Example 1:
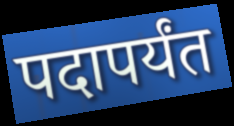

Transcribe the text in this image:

पदापर्यंत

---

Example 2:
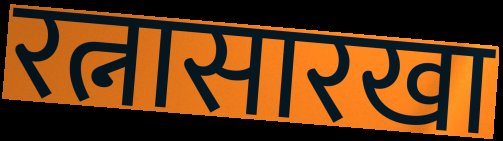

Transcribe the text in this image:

रत्नासारखा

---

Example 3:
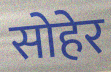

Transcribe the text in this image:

सोहेर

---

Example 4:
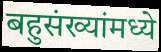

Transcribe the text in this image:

बहुसंख्यांमध्ये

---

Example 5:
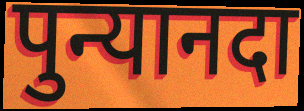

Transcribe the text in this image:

पुन्यानदा